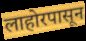
लाहोरपासून